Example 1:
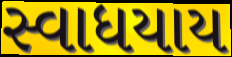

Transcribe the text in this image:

સ્વાધયાય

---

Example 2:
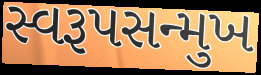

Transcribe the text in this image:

સ્વરૂપસન્મુખ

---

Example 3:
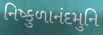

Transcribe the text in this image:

નિષ્કુળાનંદમુનિ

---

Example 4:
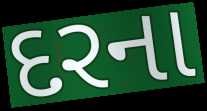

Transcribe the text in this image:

દરના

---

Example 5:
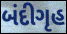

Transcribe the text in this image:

બંદીગૃહ